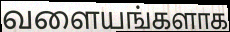
வளையங்களாக